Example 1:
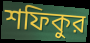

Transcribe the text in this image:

শফিকুর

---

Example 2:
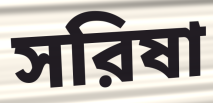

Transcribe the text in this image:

সরিষা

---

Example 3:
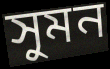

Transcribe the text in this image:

সুমন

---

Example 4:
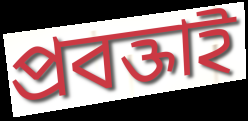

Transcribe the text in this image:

প্রবক্তাই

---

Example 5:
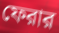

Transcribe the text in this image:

ফেরার